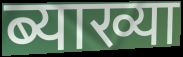
ब्याख्या